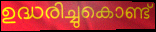
ഉദ്ധരിച്ചുകൊണ്ട്